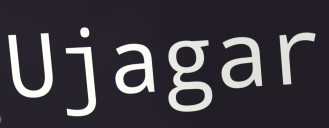
Ujagar